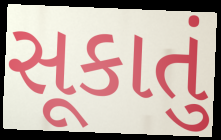
સૂકાતું